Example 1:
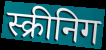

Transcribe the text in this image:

स्क्रीनिग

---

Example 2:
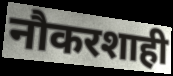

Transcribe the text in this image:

नौकरशाही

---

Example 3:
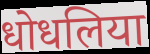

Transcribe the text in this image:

धोधलिया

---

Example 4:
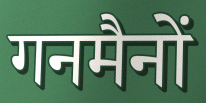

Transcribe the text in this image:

गनमैनों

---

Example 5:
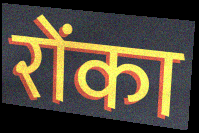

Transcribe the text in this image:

रोंका